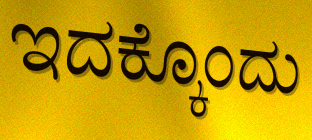
ಇದಕ್ಕೊಂದು